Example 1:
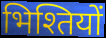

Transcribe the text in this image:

भिश्तियों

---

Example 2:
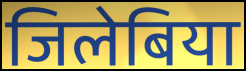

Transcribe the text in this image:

जिलेबिया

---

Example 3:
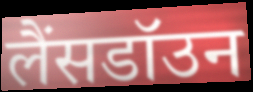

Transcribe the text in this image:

लैंसडॉउन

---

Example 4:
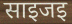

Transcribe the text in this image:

साइजइ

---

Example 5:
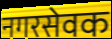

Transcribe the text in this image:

नगरसेवक